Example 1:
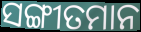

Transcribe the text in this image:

ସଙ୍ଗୀତମାନ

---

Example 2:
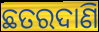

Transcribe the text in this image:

ଛତରଦାଣି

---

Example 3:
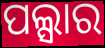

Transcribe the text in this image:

ପଲ୍ସାର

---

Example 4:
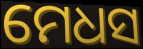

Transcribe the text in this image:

ମେଧସ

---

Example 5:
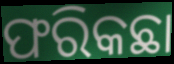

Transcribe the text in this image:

ଫରିକଛା